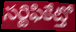
సర్టిఫికేట్తో